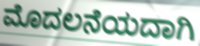
ಮೊದಲನೆಯದಾಗಿ